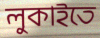
লুকাইতে